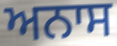
ਅਨਾਸ